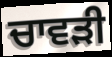
ਚਾਵੜੀ